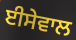
ਈਸੇਵਾਲ